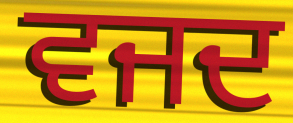
ਵਜਦ